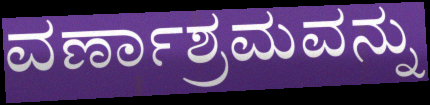
ವರ್ಣಾಶ್ರಮವನ್ನು